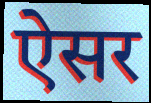
ऐसर